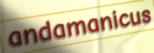
andamanicus